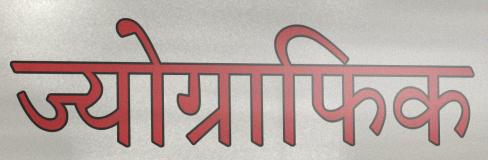
ज्योग्राफिक